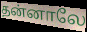
தன்னாலே